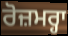
ਰੋਜ਼ਮਰ੍ਹਾ